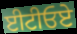
ਈਟੀਓਏ